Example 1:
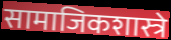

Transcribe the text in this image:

सामाजिकशास्त्रे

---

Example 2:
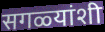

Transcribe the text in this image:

सगळ्यांशी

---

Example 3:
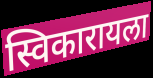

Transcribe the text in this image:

स्विकारायला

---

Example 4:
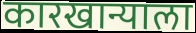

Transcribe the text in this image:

कारखान्याला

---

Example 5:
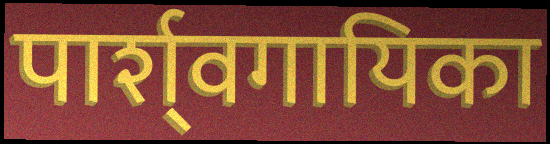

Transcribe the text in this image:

पार्श्वगायिका